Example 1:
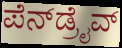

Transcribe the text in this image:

ಪೆನ್‌ಡ್ರೈವ್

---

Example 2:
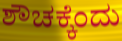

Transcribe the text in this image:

ಶೌಚಕ್ಕೆಂದು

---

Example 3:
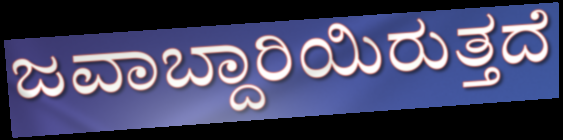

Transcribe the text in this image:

ಜವಾಬ್ದಾರಿಯಿರುತ್ತದೆ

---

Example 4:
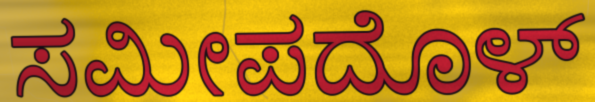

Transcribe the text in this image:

ಸಮೀಪದೊಳ್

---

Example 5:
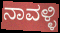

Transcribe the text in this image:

ನಾವಳ್ಳಿ